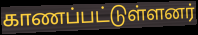
காணப்பட்டுள்ளனர்